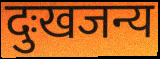
दुःखजन्य